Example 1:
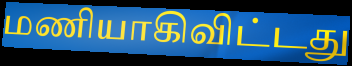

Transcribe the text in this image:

மணியாகிவிட்டது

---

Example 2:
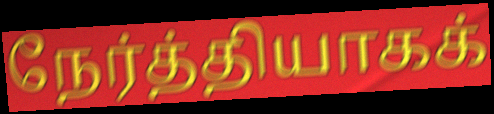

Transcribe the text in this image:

நேர்த்தியாகக்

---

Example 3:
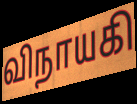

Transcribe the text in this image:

விநாயகி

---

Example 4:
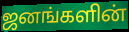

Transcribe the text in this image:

ஜனங்களின்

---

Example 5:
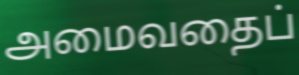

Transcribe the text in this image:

அமைவதைப்